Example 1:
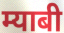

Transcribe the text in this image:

म्याबी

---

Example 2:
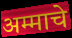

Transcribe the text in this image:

अम्माचे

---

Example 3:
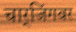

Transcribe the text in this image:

चार्जिंगवर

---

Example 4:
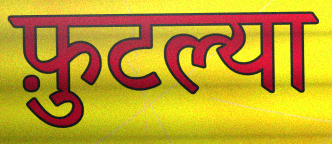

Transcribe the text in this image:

फ़ुटल्या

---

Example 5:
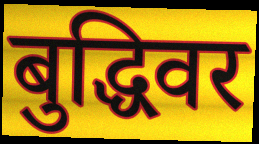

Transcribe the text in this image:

बुद्धिवर